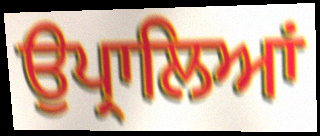
ਉਪ੍ਰਾਲਿਆਂ